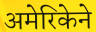
अमेरिकेने